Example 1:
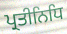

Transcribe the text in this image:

ਪ੍ਰਤੀਨਿਧਿ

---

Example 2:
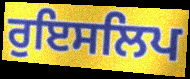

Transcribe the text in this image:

ਰੁਇਸਲਿਪ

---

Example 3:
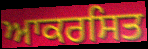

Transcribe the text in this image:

ਆਕਰਸਿਤ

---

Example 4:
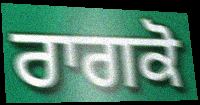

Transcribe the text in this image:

ਰਾਗਕੋ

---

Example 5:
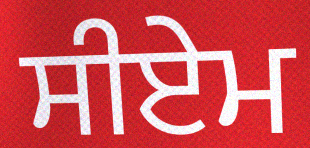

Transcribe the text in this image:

ਸੀਏਮ